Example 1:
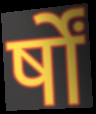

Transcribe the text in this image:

र्षों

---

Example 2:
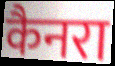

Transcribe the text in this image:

कैनरा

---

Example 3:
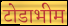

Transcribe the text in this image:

टोडाभीम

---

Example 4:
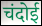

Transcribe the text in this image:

चंदोई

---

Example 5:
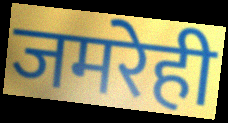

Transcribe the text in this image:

जमरेही